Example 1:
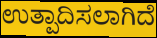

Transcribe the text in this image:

ಉತ್ಪಾದಿಸಲಾಗಿದೆ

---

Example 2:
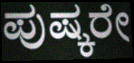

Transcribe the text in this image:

ಪುಷ್ಕರೇ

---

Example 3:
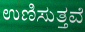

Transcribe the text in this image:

ಉಣಿಸುತ್ತವೆ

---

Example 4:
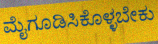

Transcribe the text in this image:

ಮೈಗೂಡಿಸಿಕೊಳ್ಳಬೇಕು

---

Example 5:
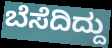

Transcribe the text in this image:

ಬೆಸೆದಿದ್ದು